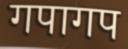
गपागप